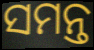
ସମନ୍ତ